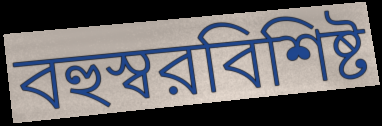
বহুস্বরবিশিষ্ট